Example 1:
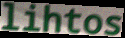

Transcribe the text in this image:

lihtos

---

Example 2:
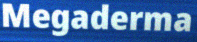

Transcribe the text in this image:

Megaderma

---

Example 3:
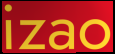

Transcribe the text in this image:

izao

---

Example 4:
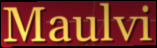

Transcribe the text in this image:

Maulvi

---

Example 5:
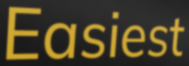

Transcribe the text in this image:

Easiest